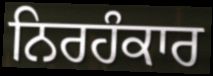
ਨਿਰਹੰਕਾਰ